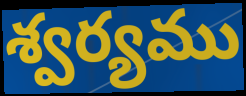
శ్వర్యము